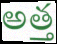
అత్త